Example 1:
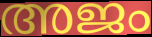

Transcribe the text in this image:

അജം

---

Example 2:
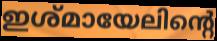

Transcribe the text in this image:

ഇശ്മായേലിന്റെ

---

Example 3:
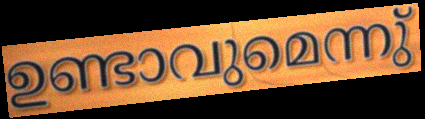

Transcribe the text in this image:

ഉണ്ടാവുമെന്നു്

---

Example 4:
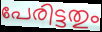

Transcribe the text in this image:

പേരിട്ടതും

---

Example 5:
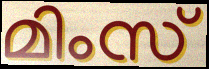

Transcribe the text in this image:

മിംസ്